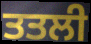
ਤਤਲੀ